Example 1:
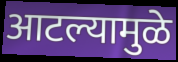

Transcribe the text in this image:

आटल्यामुळे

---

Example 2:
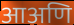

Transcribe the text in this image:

आअणि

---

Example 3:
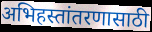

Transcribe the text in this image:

अभिहस्तांतरणासाठी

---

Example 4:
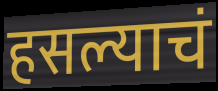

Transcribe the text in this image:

हसल्याचं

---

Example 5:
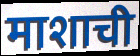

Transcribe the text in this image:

माशाची